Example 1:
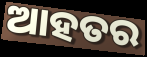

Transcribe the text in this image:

ଆହତର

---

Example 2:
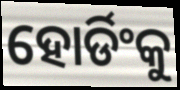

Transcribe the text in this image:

ହୋର୍ଡିଂକୁ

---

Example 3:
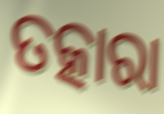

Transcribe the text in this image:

ତତ୍କାରା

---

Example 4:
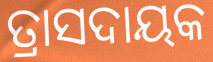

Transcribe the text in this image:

ତ୍ରାସଦାୟକ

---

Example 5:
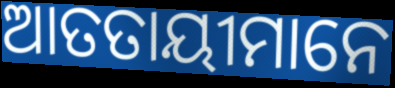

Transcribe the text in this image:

ଆତତାୟୀମାନେ